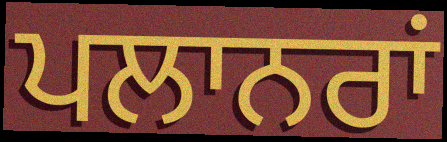
ਪਲਾਨਰਾਂ